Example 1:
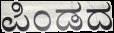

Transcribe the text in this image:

ಪಿಂಡದ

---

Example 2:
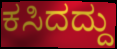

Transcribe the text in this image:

ಕಸಿದದ್ದು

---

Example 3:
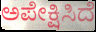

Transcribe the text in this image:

ಅಪೇಕ್ಷಿಸಿದೆ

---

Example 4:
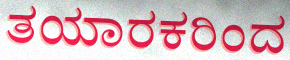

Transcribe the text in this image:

ತಯಾರಕರಿಂದ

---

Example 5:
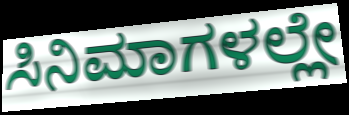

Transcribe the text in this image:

ಸಿನಿಮಾಗಳಲ್ಲೇ